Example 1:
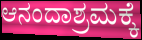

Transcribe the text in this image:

ಆನಂದಾಶ್ರಮಕ್ಕೆ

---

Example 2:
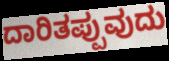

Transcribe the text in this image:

ದಾರಿತಪ್ಪುವುದು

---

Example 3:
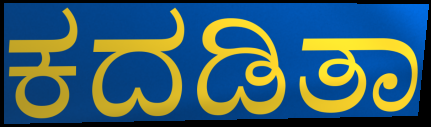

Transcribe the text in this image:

ಕದಡಿತಾ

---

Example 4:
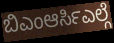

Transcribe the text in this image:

ಬಿಎಂಆರ್ಸಿಎಲ್ಗೆ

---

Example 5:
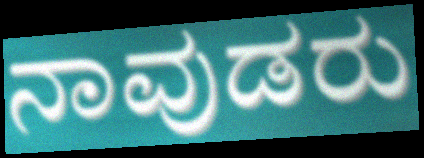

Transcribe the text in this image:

ನಾವುಡರು